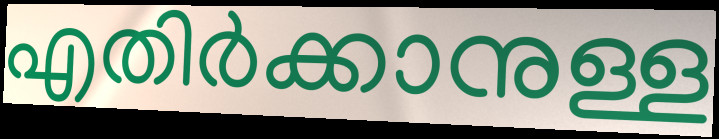
എതിർക്കാനുള്ള